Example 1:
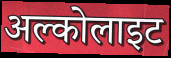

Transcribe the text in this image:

अल्कोलाइट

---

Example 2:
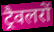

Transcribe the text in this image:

ट्रैवलरों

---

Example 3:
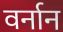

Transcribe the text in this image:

वर्नान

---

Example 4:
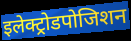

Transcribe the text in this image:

इलेक्ट्रोडपोजिशन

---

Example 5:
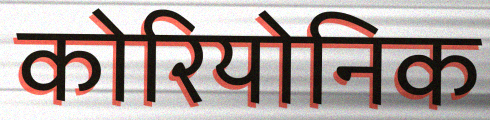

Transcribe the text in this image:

कोरियोनिक